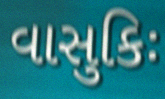
વાસુકિઃ